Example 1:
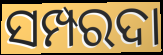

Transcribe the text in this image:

ସମ୍ପରଦା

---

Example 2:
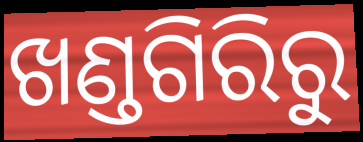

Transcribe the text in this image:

ଖଣ୍ଡଗିରିରୁ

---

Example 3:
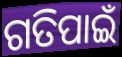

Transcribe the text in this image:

ଗତିପାଇଁ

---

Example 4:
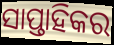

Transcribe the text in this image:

ସାପ୍ତାହିକର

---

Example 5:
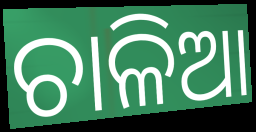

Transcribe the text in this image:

ଚାଳିଆ